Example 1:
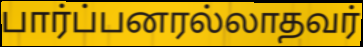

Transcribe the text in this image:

பார்ப்பனரல்லாதவர்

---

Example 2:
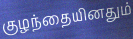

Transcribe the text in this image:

குழந்தையினதும்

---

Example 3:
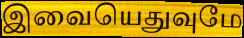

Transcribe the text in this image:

இவையெதுவுமே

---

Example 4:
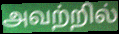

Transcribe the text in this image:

அவற்றில்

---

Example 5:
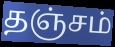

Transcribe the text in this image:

தஞ்சம்